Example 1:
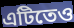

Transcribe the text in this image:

এটিতেও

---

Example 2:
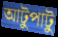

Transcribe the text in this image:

আটুপাটু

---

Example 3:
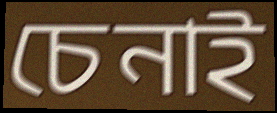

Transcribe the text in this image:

চেনাই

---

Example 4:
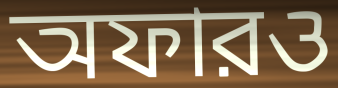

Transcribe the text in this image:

অফারও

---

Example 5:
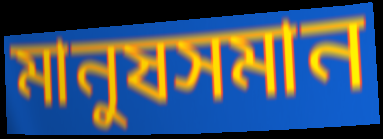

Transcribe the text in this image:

মানুষসমান